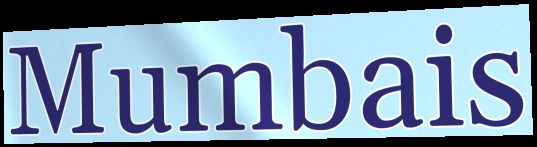
Mumbais